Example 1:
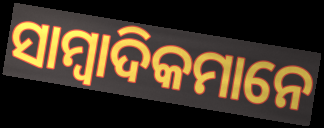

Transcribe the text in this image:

ସାମ୍ବାଦିକମାନେ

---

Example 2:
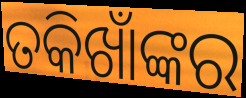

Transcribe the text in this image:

ତକିଖାଁଙ୍କର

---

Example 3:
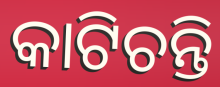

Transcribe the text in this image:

କାଟିଚନ୍ତି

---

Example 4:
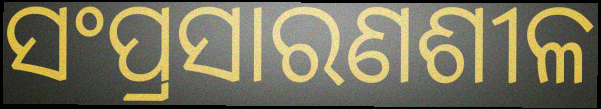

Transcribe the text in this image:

ସଂପ୍ରସାରଣଶୀଳ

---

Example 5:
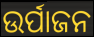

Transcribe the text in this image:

ଉର୍ପାଜନ